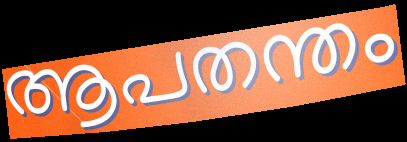
ആപതന്തം